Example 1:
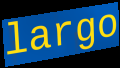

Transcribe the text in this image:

largo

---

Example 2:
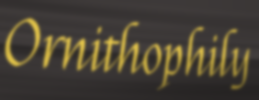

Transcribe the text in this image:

Ornithophily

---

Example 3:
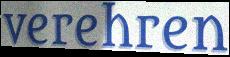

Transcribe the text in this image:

verehren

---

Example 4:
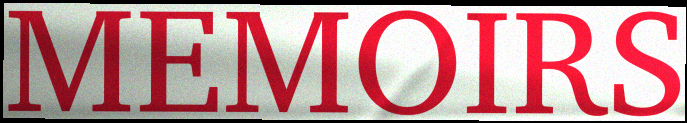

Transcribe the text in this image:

MEMOIRS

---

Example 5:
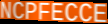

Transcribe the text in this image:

NCPFECCE